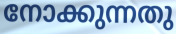
നോക്കുന്നതു